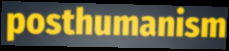
posthumanism